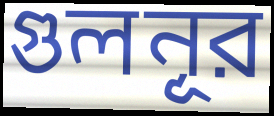
গুলনূর